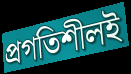
প্রগতিশীলই